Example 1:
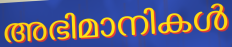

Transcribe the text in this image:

അഭിമാനികൾ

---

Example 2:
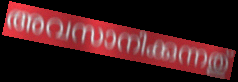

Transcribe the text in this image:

അവസാനിക്കുന്നതു്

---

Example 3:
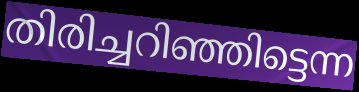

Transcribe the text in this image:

തിരിച്ചറിഞ്ഞിട്ടെന്ന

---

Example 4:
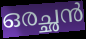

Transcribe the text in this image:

ഒരച്ഛൻ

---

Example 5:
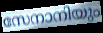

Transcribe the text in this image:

സേനാനിയും